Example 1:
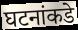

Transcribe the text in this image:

घटनांकडे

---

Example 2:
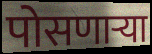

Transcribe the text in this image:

पोसणाऱ्या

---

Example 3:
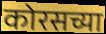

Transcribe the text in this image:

कोरसच्या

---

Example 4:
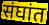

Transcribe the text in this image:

संघांत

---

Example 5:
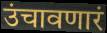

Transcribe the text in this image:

उंचावणारं